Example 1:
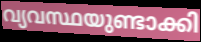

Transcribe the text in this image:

വ്യവസ്ഥയുണ്ടാക്കി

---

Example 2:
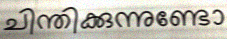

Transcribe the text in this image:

ചിന്തിക്കുന്നുണ്ടോ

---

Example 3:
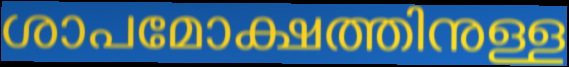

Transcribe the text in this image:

ശാപമോക്ഷത്തിനുള്ള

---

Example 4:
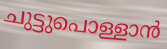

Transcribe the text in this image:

ചുട്ടുപൊള്ളാൻ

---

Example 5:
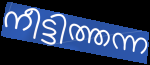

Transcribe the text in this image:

നീട്ടിത്തന്ന